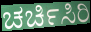
ಚರ್ಚಿಸಿರಿ